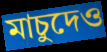
মাচুদেও